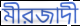
মীরজাদী